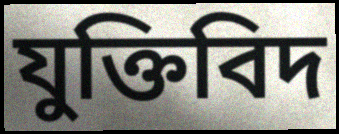
যুক্তিবিদ